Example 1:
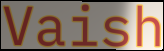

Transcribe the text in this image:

Vaish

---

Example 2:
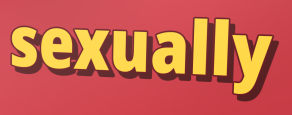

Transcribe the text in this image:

sexually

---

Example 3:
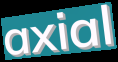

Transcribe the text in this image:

axial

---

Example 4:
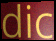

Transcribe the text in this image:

dic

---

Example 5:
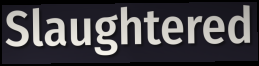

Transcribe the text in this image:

Slaughtered